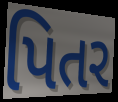
પિતર